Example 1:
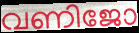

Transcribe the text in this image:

വണിജോ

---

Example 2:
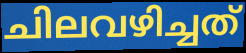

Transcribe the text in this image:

ചിലവഴിച്ചത്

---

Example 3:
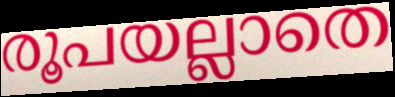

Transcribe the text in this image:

രൂപയല്ലാതെ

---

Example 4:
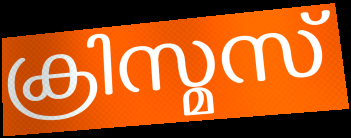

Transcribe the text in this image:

ക്രിസ്മസ്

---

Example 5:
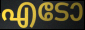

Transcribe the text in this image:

എടോ